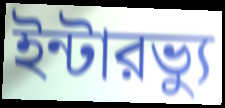
ইন্টারভ্যু